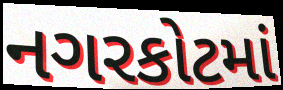
નગરકોટમાં